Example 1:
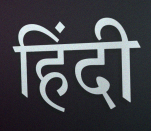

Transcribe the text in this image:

हिंदी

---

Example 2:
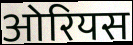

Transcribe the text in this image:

ओरियस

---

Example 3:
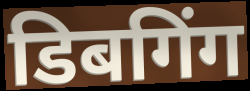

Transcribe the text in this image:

डिबगिंग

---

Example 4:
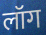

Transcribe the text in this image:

लॉग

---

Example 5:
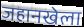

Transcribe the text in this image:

जहानखेला